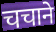
चचाने